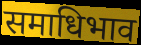
समाधिभाव